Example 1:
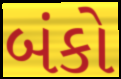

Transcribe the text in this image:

બંકો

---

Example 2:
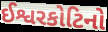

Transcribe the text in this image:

ઈશ્વરકોટિનો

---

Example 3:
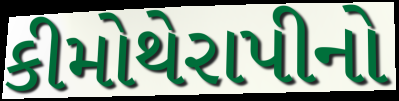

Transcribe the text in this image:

કીમોથેરાપીનો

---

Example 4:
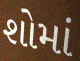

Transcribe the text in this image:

શોમાં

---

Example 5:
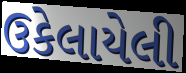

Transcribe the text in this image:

ઉકેલાયેલી